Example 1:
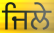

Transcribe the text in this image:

ਜਿਲੇ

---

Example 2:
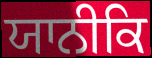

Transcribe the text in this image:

ਯਾਨੀਕਿ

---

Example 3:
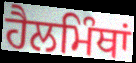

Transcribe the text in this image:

ਹੈਲਮਿੰਥਾਂ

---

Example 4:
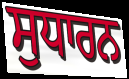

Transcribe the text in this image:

ਸੁਧਾਰਨ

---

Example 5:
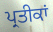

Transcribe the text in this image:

ਪ੍ਰਤੀਕਾਂ